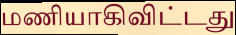
மணியாகிவிட்டது